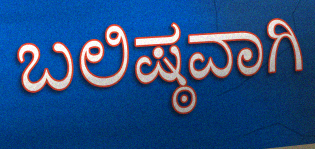
ಬಲಿಷ್ಠವಾಗಿ